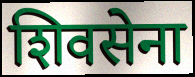
शिवसेना